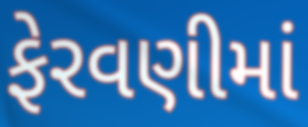
ફેરવણીમાં